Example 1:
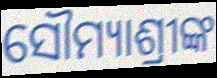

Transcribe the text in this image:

ସୌମ୍ୟାଶ୍ରୀଙ୍କ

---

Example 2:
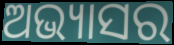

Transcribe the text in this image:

ଅଭ୍ୟାସର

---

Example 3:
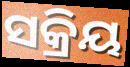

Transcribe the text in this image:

ସକ୍ରିୟ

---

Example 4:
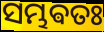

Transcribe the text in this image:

ସମ୍ଭଵତଃ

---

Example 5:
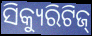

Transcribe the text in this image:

ସିକ୍ୟୁରିଟିଜ୍